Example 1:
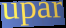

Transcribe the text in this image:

upar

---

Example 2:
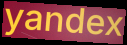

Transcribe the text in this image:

yandex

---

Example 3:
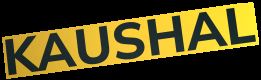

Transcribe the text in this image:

KAUSHAL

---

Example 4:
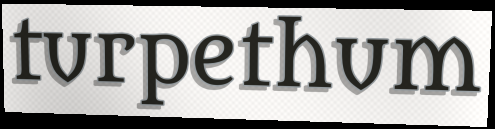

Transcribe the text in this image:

turpethum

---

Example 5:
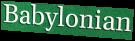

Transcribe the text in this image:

Babylonian